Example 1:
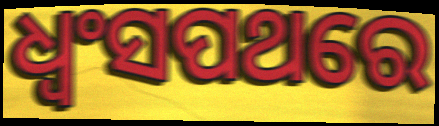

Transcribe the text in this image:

ଧ୍ବଂସପଥରେ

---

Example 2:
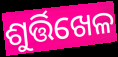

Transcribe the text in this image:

ଶୁର୍ତ୍ତିଖେଳ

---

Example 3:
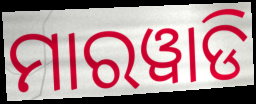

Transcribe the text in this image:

ମାରୱାଡି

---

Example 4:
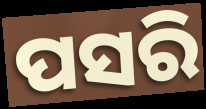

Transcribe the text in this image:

ପସରି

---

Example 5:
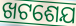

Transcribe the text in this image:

ଖଟଶେଯ